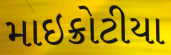
માઇક્રોટીયા